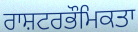
ਰਾਸ਼ਟਰਭੌਮਿਕਤਾ